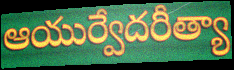
ఆయుర్వేదరీత్యా